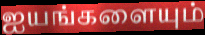
ஐயங்களையும்